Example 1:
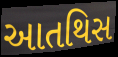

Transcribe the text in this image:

આતથિસ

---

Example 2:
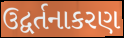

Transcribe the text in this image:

ઉદ્વર્તનાકરણ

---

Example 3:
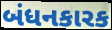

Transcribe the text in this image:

બંધનકારક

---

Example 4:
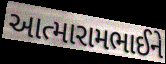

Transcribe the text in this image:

આત્મારામભાઈને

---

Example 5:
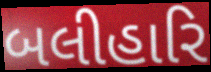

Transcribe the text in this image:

બલીહારિ